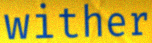
wither